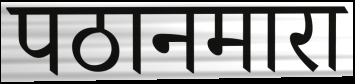
पठानमारा